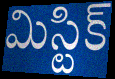
మిస్టిక్